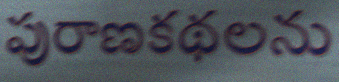
పురాణకథలను